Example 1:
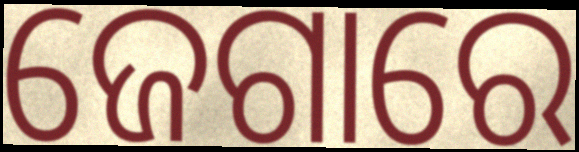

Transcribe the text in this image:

ଜେଗାରେ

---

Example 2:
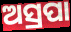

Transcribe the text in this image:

ଅସ୍ରପା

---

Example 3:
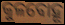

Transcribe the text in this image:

କୁଳବୋହୂ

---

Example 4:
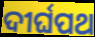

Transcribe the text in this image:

ଦୀର୍ଘପଥ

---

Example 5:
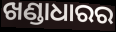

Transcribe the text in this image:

ଖଣ୍ଡାଧାରର